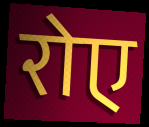
रोए